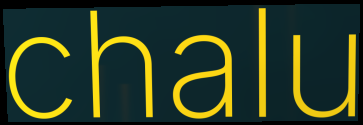
chalu